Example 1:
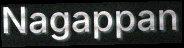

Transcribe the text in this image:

Nagappan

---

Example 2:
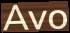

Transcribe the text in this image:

Avo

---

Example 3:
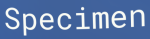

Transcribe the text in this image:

Specimen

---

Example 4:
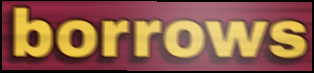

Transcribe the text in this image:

borrows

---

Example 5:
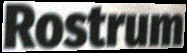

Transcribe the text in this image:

Rostrum